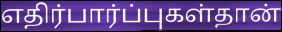
எதிர்பார்ப்புகள்தான்